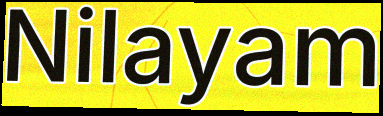
Nilayam